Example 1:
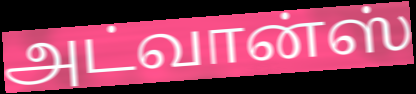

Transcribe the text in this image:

அட்வான்ஸ்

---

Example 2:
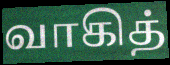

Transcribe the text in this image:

வாகித்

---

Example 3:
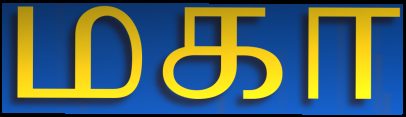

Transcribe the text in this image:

மகா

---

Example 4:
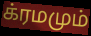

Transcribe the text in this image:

க்ரமமும்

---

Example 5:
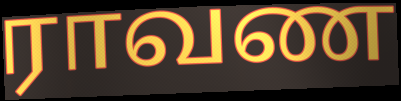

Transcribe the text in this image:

ராவண